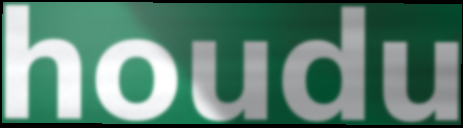
houdu